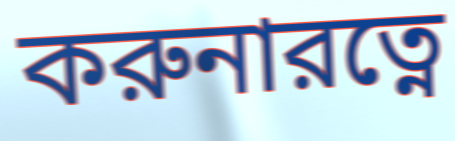
করুনারত্নে